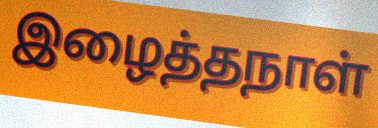
இழைத்தநாள்